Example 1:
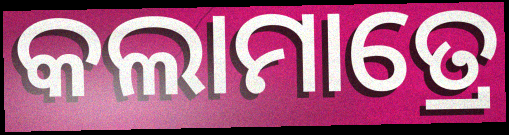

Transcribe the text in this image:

କଲାମାତ୍ରେ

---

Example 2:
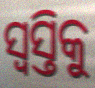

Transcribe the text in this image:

ସ୍ୱସ୍ତିକୁ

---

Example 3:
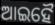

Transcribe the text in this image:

ଆଇହୈ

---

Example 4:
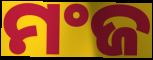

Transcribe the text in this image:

ମଂଜ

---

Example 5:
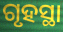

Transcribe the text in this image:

ଗୃହସ୍ଥା